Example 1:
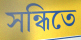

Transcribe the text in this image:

সন্ধিতে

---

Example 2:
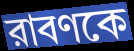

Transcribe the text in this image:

রাবণকে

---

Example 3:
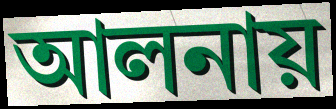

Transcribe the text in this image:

আলনায়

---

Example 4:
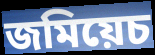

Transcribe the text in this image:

জমিয়েচ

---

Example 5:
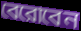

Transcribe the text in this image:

বেরোবেন